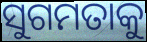
ସୁଗମତାକୁ